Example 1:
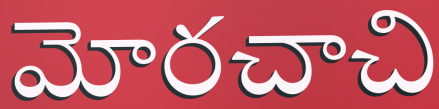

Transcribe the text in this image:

మోరచాచి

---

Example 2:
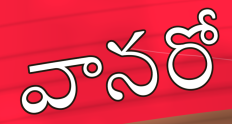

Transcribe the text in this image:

వానరో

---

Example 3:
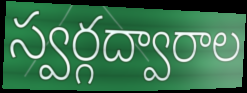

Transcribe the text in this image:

స్వర్గద్వారాల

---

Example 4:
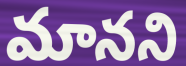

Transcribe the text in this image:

మానని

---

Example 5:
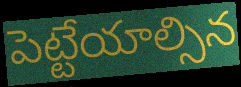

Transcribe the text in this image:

పెట్టేయాల్సిన